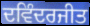
ਦਵਿੰਦਰਜੀਤ